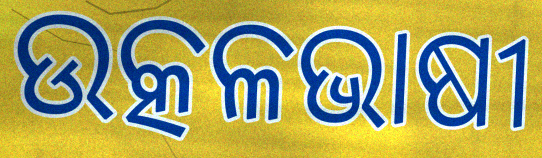
ଉତ୍କଳଭାଷୀ